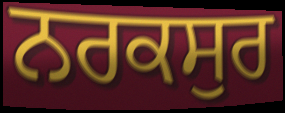
ਨਰਕਸੁਰ